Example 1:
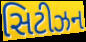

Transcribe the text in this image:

સિટીઝન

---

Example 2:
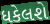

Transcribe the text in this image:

ધકેલશે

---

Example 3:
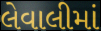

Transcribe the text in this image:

લેવાલીમાં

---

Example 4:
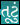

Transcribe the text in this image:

તૂટું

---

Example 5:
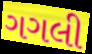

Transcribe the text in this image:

ગગલી